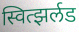
स्वित्झर्लड